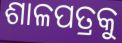
ଶାଳପତ୍ରକୁ